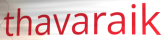
thavaraik